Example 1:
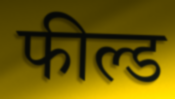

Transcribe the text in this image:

फील्ड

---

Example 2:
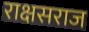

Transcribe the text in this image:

राक्षसराज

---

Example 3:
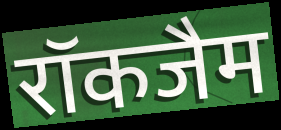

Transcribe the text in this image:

रॉकजैम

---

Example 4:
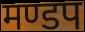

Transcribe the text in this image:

मण्‍डप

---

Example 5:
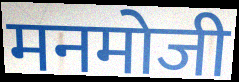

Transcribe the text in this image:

मनमोजी